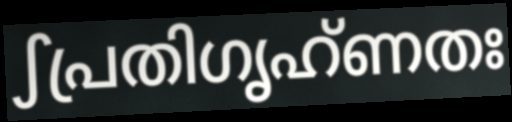
ഽപ്രതിഗൃഹ്ണതഃ